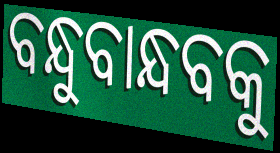
ବନ୍ଧୁବାନ୍ଧବକୁ